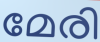
മേരി